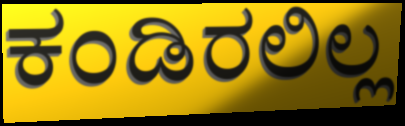
ಕಂಡಿರಲಿಲ್ಲ